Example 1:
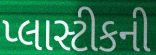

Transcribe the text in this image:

પ્લાસ્ટીકની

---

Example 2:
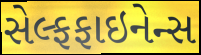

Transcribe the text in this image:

સેલ્ફફાઇનેન્સ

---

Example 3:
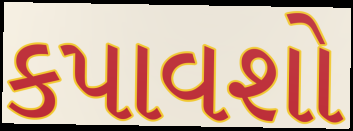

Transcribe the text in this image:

કપાવશો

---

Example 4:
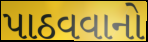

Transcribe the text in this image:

પાઠવવાનો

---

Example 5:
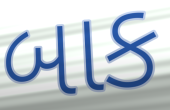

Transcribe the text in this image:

બાક